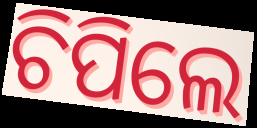
ଚିପିଲେ